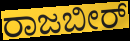
ರಾಜಬೀರ್